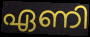
ഏണി